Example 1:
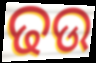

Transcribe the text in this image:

ଢଉ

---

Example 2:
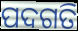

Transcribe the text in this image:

ପଦଗତି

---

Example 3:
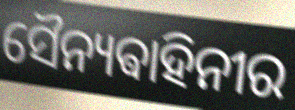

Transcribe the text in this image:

ସୈନ୍ୟଵାହିନୀର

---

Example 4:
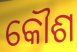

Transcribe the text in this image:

କୌଶ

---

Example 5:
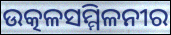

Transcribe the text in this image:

ଉତ୍କଳସମ୍ମିଳନୀର